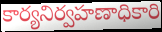
కార్యనిర్వహణాధికారి